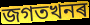
জগতখনৰ